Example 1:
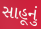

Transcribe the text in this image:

સાહૂનું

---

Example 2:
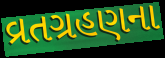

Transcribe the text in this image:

વ્રતગ્રહણના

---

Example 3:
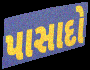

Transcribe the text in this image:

પાસાદો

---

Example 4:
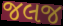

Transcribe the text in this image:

જલજ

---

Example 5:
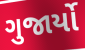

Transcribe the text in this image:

ગુજાર્યો